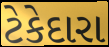
ટેકેદારા